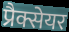
प्रैक्सेयर